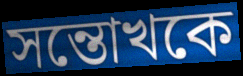
সন্তোখকে